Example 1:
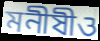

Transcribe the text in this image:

মনীষীও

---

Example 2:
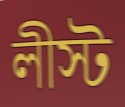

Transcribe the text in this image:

লীস্ট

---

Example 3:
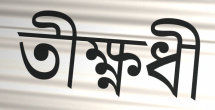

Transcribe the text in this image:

তীক্ষ্ণধী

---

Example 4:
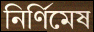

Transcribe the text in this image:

নির্ণিমেষ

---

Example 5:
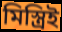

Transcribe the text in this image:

মিস্ত্রিই